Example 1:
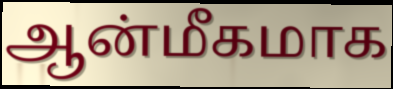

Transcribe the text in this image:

ஆன்மீகமாக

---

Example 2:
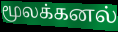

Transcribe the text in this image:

மூலக்கனல்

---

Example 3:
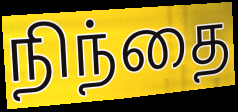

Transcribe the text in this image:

நிந்தை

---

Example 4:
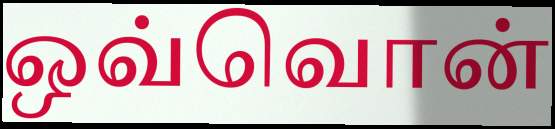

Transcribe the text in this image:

ஒவ்வொன்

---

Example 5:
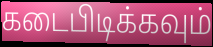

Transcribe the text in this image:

கடைபிடிக்கவும்